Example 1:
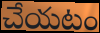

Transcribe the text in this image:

చేయటం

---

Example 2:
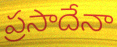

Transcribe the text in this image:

ప్రసాదేనా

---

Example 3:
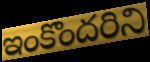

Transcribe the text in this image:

ఇంకొందరిని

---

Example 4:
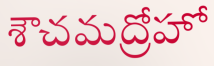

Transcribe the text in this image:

శౌచమద్రోహో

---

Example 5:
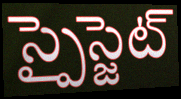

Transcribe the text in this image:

స్పైస్జెట్